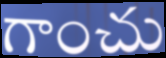
గాంచు